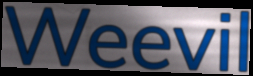
Weevil